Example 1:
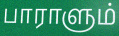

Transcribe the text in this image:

பாராளும்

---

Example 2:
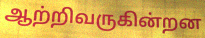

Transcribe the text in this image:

ஆற்றிவருகின்றன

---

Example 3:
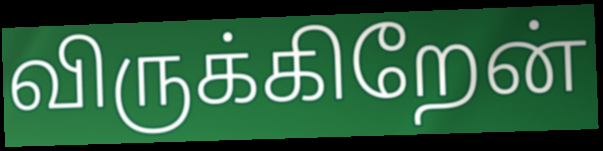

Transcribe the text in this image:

விருக்கிறேன்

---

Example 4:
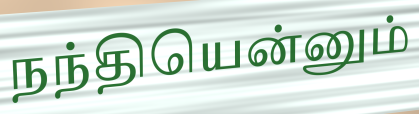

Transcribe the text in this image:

நந்தியென்னும்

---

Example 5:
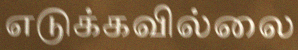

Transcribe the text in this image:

எடுக்கவில்லை